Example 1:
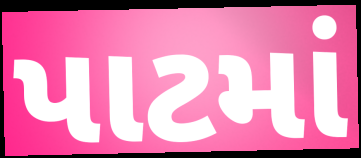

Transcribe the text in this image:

પાટમાં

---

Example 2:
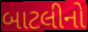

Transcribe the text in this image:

બાટલીનો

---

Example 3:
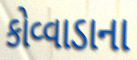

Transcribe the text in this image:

કોવ્વાડાના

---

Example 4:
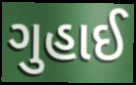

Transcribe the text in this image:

ગુહાઈ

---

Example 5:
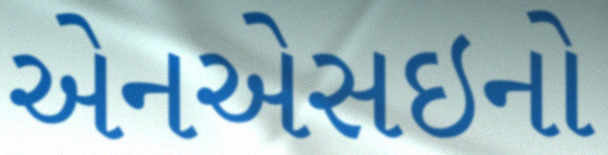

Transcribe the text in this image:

એનએસઇનો